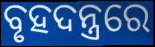
ବୃହଦନ୍ତ୍ରରେ